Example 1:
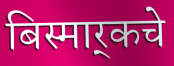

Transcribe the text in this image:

बिस्मार्कचे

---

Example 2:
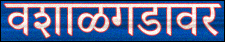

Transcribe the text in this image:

वशाळगडावर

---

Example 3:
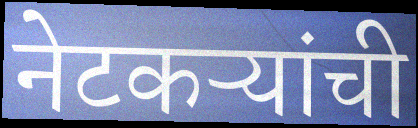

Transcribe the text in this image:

नेटकऱ्यांची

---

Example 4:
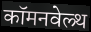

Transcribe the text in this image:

कॉमनवेल्थ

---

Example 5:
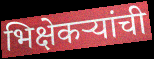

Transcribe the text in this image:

भिक्षेकऱ्यांची